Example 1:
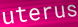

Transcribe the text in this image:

uterus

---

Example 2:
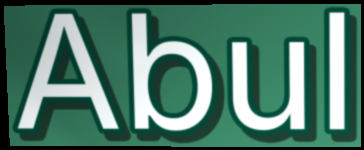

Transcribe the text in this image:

Abul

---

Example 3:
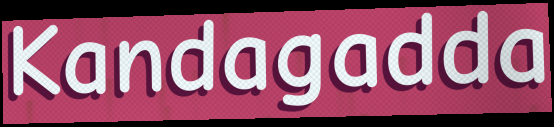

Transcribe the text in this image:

Kandagadda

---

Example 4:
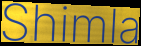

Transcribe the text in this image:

Shimla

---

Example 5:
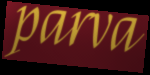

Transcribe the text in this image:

parva